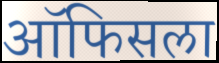
ऑफिसला